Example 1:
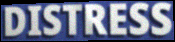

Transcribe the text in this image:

DISTRESS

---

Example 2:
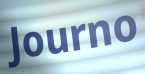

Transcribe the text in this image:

Journo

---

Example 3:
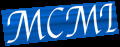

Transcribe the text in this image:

MCMI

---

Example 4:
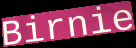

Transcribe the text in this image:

Birnie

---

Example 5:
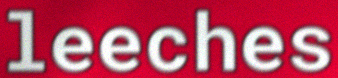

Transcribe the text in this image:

leeches